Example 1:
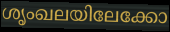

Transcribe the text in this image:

ശൃംഖലയിലേക്കോ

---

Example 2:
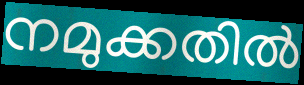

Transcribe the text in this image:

നമുക്കതിൽ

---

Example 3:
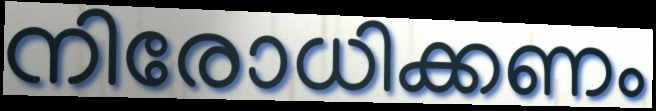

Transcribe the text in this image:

നിരോധിക്കണം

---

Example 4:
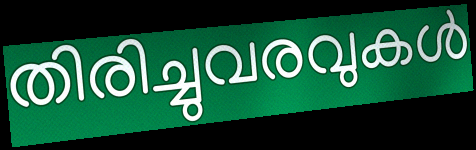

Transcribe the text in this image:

തിരിച്ചുവരവുകൾ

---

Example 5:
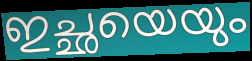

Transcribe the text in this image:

ഇച്ഛയെയും